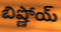
బిష్ణోయ్